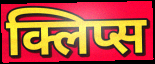
क्लिप्स